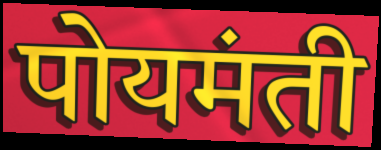
पोयमंती